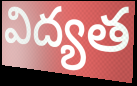
విద్యత